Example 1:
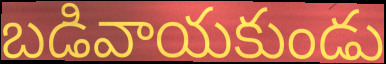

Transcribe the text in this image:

బడివాయకుండు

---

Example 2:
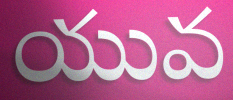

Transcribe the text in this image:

యువ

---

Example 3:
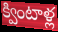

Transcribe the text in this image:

క్వింటాళ్ల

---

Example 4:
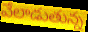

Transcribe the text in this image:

వేలాడుతున్న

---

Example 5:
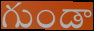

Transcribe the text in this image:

గుండా